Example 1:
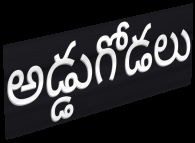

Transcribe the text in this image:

అడ్డుగోడలు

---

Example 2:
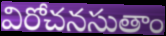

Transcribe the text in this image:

విరోచనసుతాం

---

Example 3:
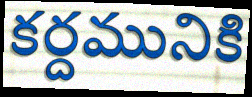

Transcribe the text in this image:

కర్దమునికి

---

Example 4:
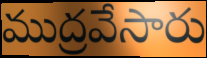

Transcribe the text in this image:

ముద్రవేసారు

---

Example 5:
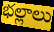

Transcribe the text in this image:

భల్లాలు